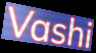
Vashi